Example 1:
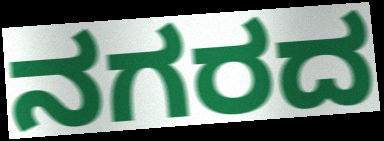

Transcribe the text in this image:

ನಗರದ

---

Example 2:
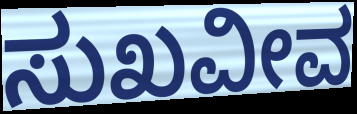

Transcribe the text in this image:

ಸುಖವೀವ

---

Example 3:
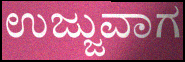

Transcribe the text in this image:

ಉಜ್ಜುವಾಗ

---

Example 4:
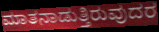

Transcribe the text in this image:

ಮಾತನಾಡುತ್ತಿರುವುದರ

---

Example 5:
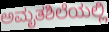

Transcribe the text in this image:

ಅಮೃತಶಿಲೆಯಲ್ಲಿ